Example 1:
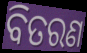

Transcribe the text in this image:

ବିତରଣ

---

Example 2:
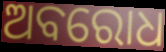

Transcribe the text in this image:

ଅବରୋଧ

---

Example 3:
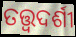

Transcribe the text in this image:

ତତ୍ତ୍ଵଦର୍ଶୀ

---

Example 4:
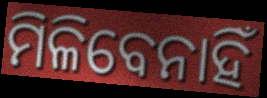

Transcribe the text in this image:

ମିଳିବେନାହିଁ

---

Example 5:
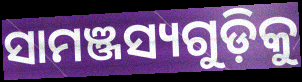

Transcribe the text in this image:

ସାମଞ୍ଜସ୍ୟଗୁଡ଼ିକୁ